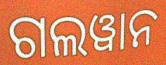
ଗଲୱାନ